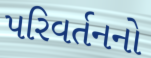
પરિવર્તનનો